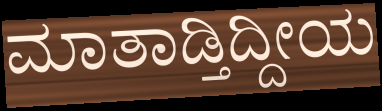
ಮಾತಾಡ್ತಿದ್ದೀಯ